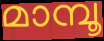
മാമ്പൂ